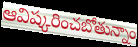
ఆవిష్కరించబోతున్నాం